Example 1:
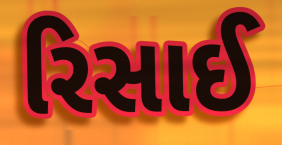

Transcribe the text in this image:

રિસાઈ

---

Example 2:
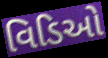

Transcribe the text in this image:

વિડિઓ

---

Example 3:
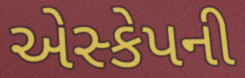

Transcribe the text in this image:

એસ્કેપની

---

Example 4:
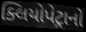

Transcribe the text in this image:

ક્લિયોપેટ્રાનો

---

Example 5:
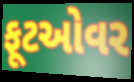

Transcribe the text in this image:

ફૂટઓવર